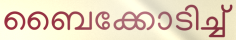
ബൈക്കോടിച്ച്